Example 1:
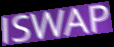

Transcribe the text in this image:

ISWAP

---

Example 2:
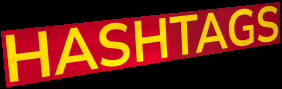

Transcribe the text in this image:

HASHTAGS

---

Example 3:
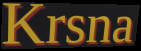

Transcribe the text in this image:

Krsna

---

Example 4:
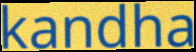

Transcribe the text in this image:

kandha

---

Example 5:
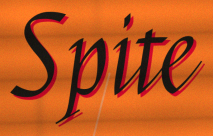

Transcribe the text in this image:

Spite